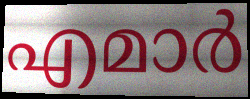
എമാർ